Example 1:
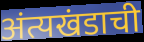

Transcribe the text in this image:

अंत्यखंडाची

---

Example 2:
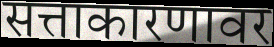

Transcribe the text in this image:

सत्ताकारणावर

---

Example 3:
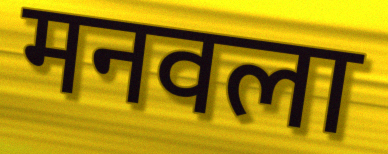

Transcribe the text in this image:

मनवला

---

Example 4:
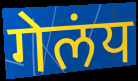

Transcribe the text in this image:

गेलंय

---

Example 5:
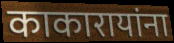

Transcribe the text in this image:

काकारायांना